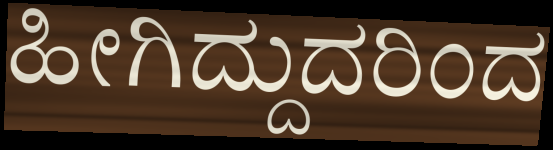
ಹೀಗಿದ್ದುದರಿಂದ